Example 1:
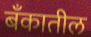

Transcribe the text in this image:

बँकातील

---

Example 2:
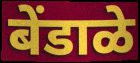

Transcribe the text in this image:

बेंडाळे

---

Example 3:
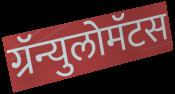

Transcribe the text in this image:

ग्रॅन्युलोमॅटस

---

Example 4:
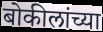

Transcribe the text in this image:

बोकीलांच्या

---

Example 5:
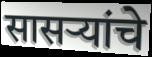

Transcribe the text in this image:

सासर्‍यांचे